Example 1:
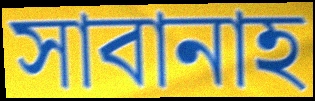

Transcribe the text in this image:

সাবানাহ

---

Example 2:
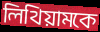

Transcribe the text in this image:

লিথিয়ামকে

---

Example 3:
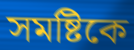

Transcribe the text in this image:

সমষ্টিকে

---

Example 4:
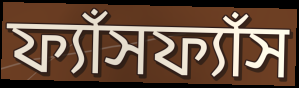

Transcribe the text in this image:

ফ্যাঁসফ্যাঁস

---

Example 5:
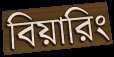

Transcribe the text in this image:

বিয়ারিং